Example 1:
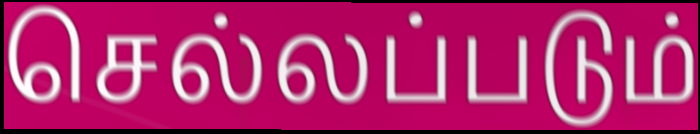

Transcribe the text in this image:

செல்லப்படும்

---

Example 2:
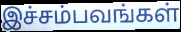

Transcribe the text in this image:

இச்சம்பவங்கள்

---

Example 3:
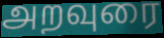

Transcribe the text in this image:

அறவுரை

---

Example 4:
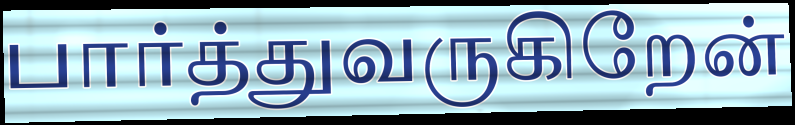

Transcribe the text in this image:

பார்த்துவருகிறேன்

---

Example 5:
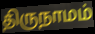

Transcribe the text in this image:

திருநாமம்